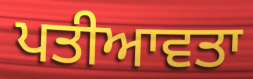
ਪਤੀਆਵਤਾ